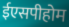
ईएसपीहोम